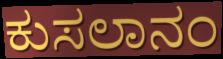
ಕುಸಲಾನಂ